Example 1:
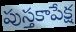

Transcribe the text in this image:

పుస్తకాపేక్ష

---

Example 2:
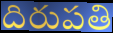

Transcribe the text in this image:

దిరుపతి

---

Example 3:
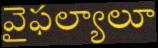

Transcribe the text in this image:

వైఫల్యాలూ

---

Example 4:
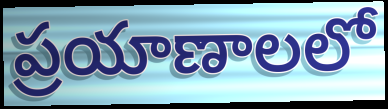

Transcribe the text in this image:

ప్రయాణాలలో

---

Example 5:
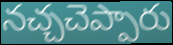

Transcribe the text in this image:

నచ్చచెప్పారు